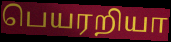
பெயரறியா